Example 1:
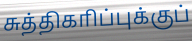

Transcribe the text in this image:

சுத்திகரிப்புக்குப்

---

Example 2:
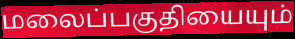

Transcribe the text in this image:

மலைப்பகுதியையும்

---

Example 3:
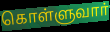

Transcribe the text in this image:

கொள்ளுவார்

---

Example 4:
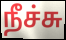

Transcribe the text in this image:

நீச்சு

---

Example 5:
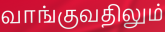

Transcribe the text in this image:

வாங்குவதிலும்